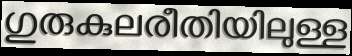
ഗുരുകുലരീതിയിലുള്ള